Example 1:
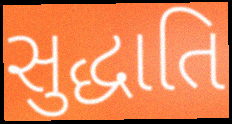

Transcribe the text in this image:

સુદ્ધાતિ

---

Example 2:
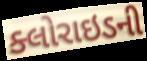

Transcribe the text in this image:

ક્લોરાઇડની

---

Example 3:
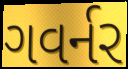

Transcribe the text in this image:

ગવર્નર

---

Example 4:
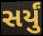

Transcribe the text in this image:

સર્યું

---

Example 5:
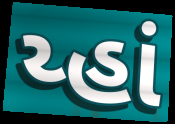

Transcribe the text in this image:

ય્હાં